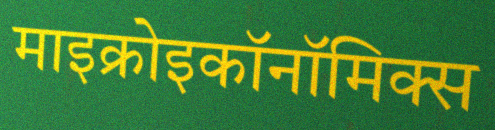
माइक्रोइकॉनॉमिक्स